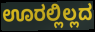
ಊರಲ್ಲಿಲ್ಲದ